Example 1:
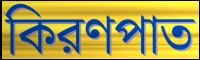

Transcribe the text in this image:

কিরণপাত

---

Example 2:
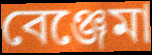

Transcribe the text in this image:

বেঞ্জেমা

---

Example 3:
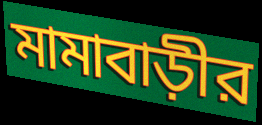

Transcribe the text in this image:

মামাবাড়ীর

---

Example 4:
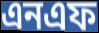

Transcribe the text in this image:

এনএফ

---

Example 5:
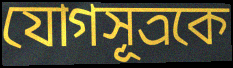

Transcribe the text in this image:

যোগসূত্রকে